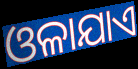
ଓଳାଯାଏ